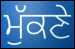
ਮੁੱਕਣੇ